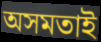
অসমতাই